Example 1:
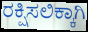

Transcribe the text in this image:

ರಕ್ಷಿಸಲಿಕ್ಕಾಗಿ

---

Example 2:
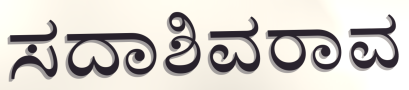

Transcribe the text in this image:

ಸದಾಶಿವರಾವ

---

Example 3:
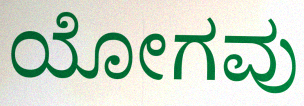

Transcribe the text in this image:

ಯೋಗವು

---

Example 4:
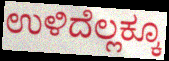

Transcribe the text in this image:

ಉಳಿದೆಲ್ಲಕ್ಕೂ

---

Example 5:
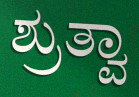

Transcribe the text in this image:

ಶ್ರುತ್ವಾ